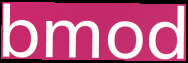
bmod